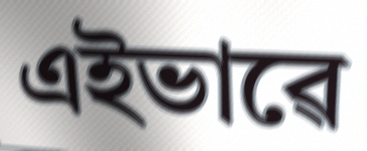
এইভাৱে